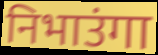
निभाउंगा